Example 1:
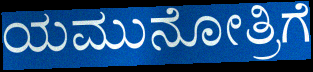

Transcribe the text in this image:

ಯಮುನೋತ್ರಿಗೆ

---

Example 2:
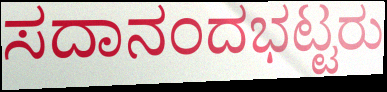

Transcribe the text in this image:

ಸದಾನಂದಭಟ್ಟರು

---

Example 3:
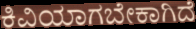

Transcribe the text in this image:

ಕಿವಿಯಾಗಬೇಕಾಗಿದೆ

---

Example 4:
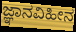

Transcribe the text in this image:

ಜ್ಞಾನವಿಹೀನ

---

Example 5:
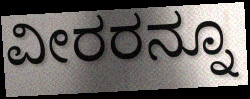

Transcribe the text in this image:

ವೀರರನ್ನೂ